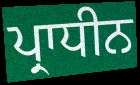
ਪ੍ਰਾਧੀਨ